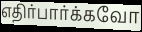
எதிர்பார்க்கவோ